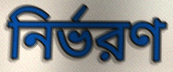
নির্ভরণ